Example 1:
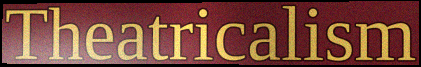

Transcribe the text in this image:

Theatricalism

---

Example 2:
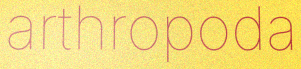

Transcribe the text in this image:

arthropoda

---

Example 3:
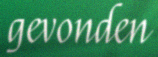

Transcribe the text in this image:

gevonden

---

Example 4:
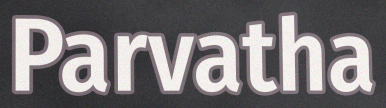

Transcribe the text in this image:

Parvatha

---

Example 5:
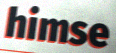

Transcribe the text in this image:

himse